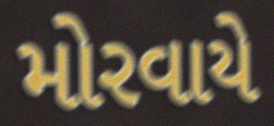
મોરવાયે